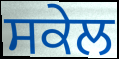
ਸਕੇਲ